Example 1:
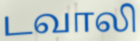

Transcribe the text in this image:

டவாலி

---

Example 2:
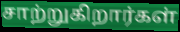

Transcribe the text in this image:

சாற்றுகிறார்கள்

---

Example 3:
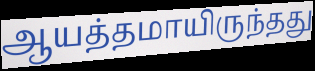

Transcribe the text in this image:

ஆயத்தமாயிருந்தது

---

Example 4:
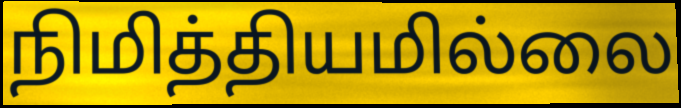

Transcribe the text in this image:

நிமித்தியமில்லை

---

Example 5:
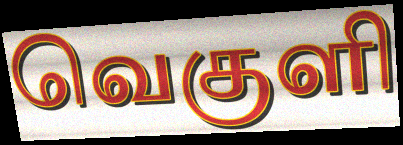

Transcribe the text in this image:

வெகுளி